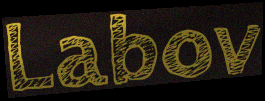
Labov